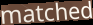
matched